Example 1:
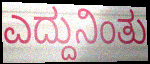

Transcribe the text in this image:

ಎದ್ದುನಿಂತು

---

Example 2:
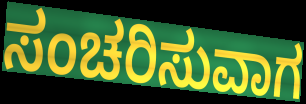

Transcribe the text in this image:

ಸಂಚರಿಸುವಾಗ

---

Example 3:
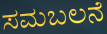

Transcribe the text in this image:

ಸಮಬಲನೆ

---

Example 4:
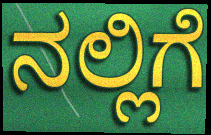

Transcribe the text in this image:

ನಲ್ಲಿಗೆ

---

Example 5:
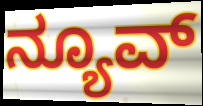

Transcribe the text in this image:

ನ್ಯೂವ್